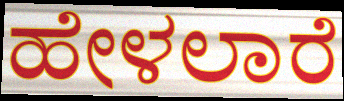
ಹೇಳಲಾರೆ